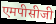
एमपीसीजी